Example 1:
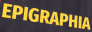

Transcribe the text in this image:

EPIGRAPHIA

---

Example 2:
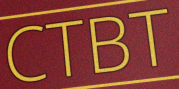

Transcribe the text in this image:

CTBT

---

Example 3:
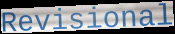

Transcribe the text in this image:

Revisional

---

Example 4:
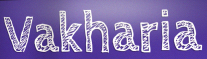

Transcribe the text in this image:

Vakharia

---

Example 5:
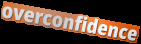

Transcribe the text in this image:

overconfidence